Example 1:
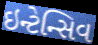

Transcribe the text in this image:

ઇન્ટેન્સિવ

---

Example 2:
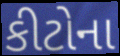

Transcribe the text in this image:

કીટોના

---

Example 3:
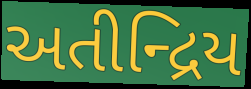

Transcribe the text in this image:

અતીન્દ્રિય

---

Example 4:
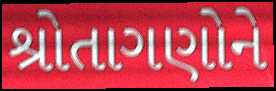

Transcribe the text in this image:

શ્રોતાગણોને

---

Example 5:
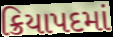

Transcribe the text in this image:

ક્રિયાપદમાં